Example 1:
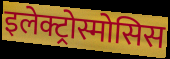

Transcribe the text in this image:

इलेक्ट्रोस्मोसिस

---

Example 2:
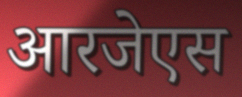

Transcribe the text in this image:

आरजेएस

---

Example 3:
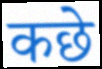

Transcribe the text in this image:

कछे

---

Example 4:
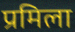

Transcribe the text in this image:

प्रमिला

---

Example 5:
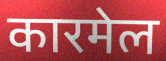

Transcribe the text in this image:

कारमेल